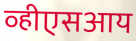
व्हीएसआय